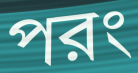
পরং